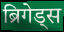
ब्रिगेड्स